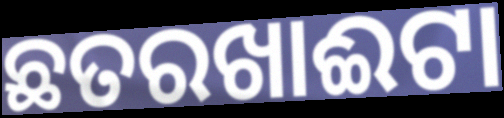
ଛତରଖାଈଟା